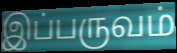
இப்பருவம்